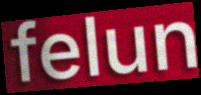
felun